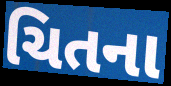
ચિતના